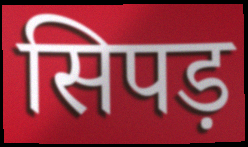
सिपड़